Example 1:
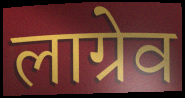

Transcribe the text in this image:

लाग्रेव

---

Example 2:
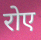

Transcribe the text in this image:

रोए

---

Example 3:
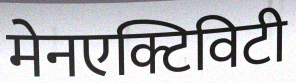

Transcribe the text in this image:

मेनएक्टिविटी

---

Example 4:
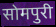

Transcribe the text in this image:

सोमपुरी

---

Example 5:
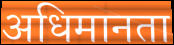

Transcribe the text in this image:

अधिमानता